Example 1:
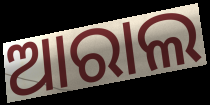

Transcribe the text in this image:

ଆରାଲ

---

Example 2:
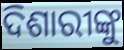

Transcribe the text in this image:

ଦିଶାରୀଙ୍କୁ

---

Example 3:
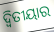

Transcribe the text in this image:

ଦ୍ଵିତୀୟାର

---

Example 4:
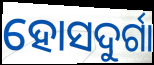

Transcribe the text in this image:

ହୋସଦୁର୍ଗା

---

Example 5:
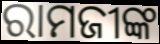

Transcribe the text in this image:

ରାମଜୀଙ୍କ